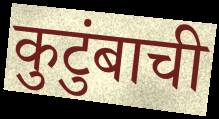
कुटुंबाची